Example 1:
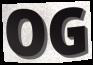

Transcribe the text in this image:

OG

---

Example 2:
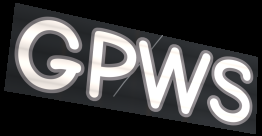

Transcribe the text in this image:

GPWS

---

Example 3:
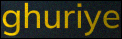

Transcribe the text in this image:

ghuriye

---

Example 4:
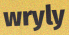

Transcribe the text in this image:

wryly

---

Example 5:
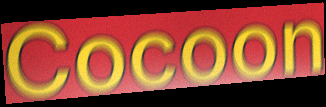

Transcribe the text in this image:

Cocoon